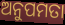
ଅନୁପମତା